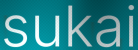
sukai